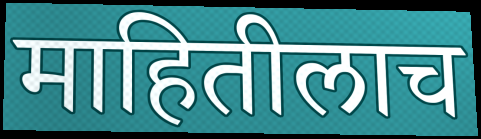
माहितीलाच